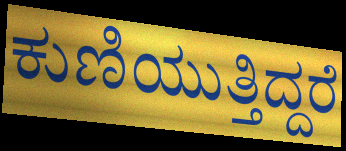
ಕುಣಿಯುತ್ತಿದ್ದರೆ